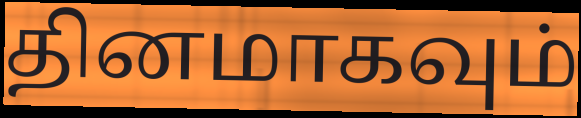
தினமாகவும்